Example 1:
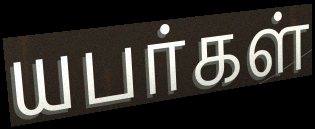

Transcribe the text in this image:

யபர்கள்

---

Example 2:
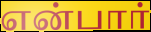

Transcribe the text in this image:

என்பார்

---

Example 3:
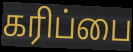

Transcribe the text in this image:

கரிப்பை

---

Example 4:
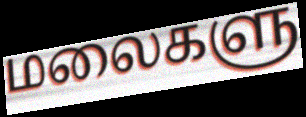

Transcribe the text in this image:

மலைகளு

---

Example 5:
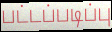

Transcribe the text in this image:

பட்டப்படிப்பு